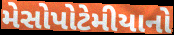
મેસોપોટેમીયાનો